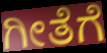
ಗೀತೆಗೆ